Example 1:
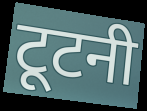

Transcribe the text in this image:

टूटनी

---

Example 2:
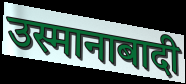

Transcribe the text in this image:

उस्मानाबादी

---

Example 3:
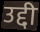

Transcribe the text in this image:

उद्दी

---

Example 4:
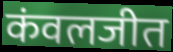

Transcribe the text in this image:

कंवलजीत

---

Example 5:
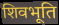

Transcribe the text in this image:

शिवभूति